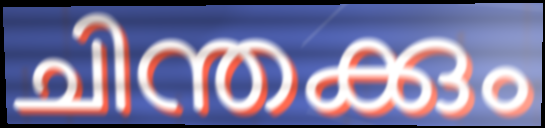
ചിന്തക്കും